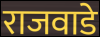
राजवाडे